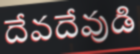
దేవదేవుడి